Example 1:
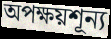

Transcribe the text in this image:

অপক্ষয়শূন্য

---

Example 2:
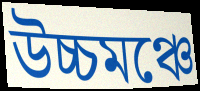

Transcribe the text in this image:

উচ্চমঞ্চে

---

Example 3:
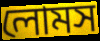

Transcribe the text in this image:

লোমস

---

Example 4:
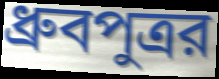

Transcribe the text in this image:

ধ্রুবপুত্রর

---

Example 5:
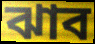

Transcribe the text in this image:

ঝাব